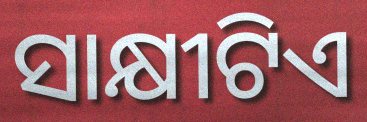
ସାକ୍ଷୀଟିଏ